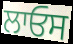
ਲਾਓਸ